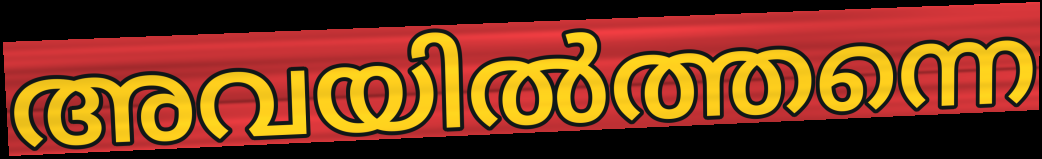
അവയിൽത്തന്നെ